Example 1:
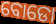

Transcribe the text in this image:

ବୋଡୋ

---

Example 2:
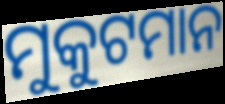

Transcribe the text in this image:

ମୁକୁଟମାନ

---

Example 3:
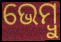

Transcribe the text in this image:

ଭେମ୍ବୁ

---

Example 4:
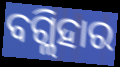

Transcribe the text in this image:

ବଗ୍ଲିହାର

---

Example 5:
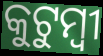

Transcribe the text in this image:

କୁଟୁମ୍ବୀ